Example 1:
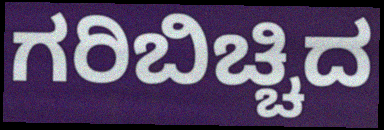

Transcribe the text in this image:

ಗರಿಬಿಚ್ಚಿದ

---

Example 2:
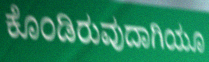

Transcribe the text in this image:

ಕೊಂಡಿರುವುದಾಗಿಯೂ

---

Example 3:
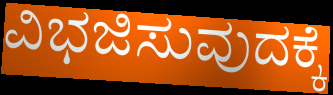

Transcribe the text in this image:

ವಿಭಜಿಸುವುದಕ್ಕೆ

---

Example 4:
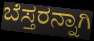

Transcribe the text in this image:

ಬೆಸ್ತರನ್ನಾಗಿ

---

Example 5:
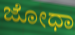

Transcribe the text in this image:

ಜೋಧಾ